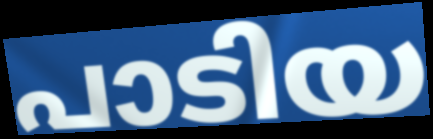
പാടിയ